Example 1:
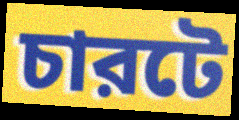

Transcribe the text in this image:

চারটে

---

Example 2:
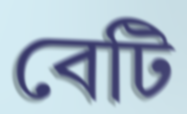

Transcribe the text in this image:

বেটি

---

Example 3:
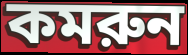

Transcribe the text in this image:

কমরুন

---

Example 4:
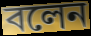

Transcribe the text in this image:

বলেন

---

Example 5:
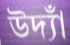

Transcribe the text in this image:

উদ্যাঁ